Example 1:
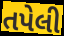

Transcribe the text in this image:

તપેલી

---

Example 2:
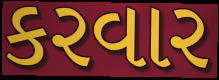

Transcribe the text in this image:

કરવાર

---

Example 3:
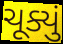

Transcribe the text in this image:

ચૂક્યું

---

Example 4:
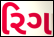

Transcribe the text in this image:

રિગ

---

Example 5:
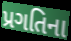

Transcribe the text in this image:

પ્રગતિના